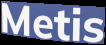
Metis